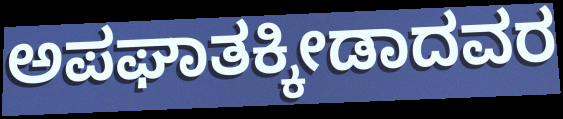
ಅಪಘಾತಕ್ಕೀಡಾದವರ